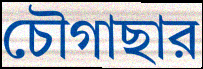
চৌগাছার